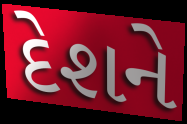
દેશને